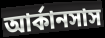
আর্কানসাস